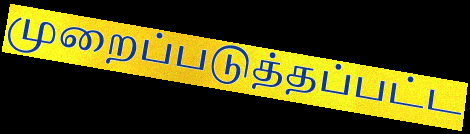
முறைப்படுத்தப்பட்ட